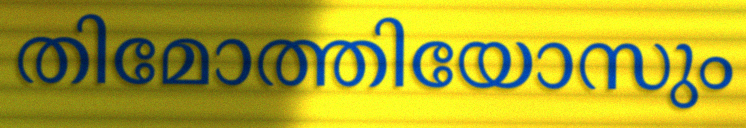
തിമോത്തിയോസും